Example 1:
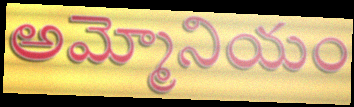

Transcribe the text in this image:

అమ్మోనియం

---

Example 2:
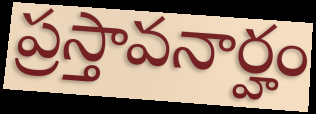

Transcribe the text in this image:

ప్రస్తావనార్హం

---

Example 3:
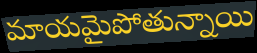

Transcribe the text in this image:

మాయమైపోతున్నాయి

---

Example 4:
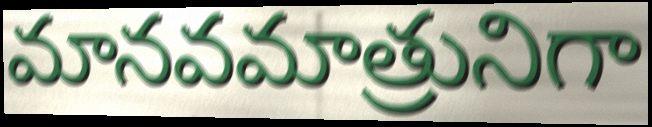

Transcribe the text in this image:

మానవమాత్రునిగా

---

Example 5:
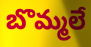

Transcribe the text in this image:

బొమ్మలే